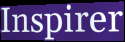
Inspirer